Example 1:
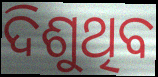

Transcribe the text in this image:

ଦିଶୁଥିବ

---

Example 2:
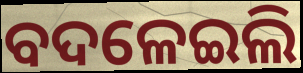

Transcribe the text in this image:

ବଦଳେଇଲି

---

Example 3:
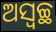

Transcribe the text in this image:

ଅସ୍ଵଚ୍ଛ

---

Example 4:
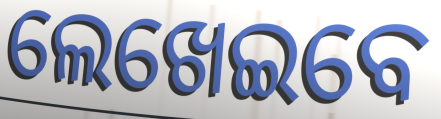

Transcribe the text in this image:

ଲେଖେଇବେ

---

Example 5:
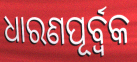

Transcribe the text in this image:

ଧାରଣପୂର୍ବ୍ବକ